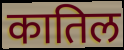
कातिल